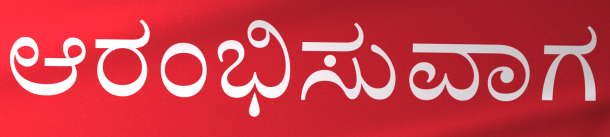
ಆರಂಭಿಸುವಾಗ